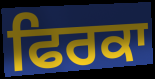
ਫਿਰਕਾ